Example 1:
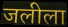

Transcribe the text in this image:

जलीला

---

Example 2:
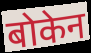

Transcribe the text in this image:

बोकेन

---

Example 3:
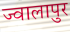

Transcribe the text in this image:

ज्वालापुर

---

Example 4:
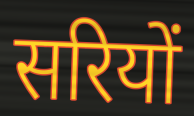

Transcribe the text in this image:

सरियों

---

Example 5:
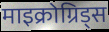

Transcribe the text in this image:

माइक्रोग्रिड्स